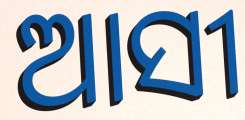
ଆସୀ